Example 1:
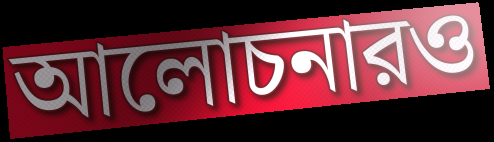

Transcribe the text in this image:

আলোচনারও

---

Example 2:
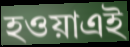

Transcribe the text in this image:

হওয়াএই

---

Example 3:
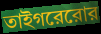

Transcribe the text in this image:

তাইগরেরোর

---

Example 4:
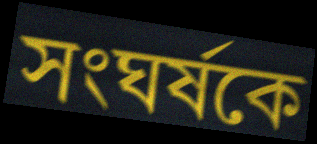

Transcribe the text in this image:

সংঘর্ষকে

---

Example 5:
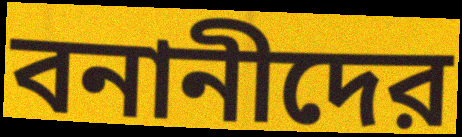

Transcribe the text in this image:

বনানীদের